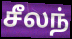
சீலந்